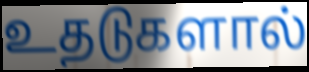
உதடுகளால்